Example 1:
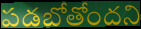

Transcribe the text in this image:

పడబోతోందని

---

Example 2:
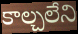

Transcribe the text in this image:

కాల్చలేని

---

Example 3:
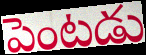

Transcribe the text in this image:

పెంటడు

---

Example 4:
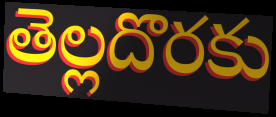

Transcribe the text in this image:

తెల్లదొరకు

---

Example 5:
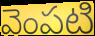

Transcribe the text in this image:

వెంపటి